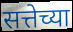
सत्तेच्या